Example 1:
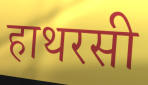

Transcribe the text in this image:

हाथरसी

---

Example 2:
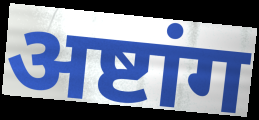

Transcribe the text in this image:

अष्टांग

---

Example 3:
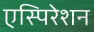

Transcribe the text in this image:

एस्पिरेशन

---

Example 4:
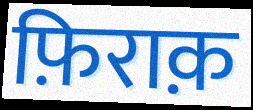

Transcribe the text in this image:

फ़िराक़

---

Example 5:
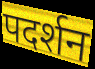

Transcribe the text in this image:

पदर्शन